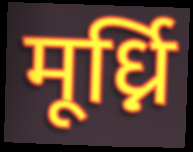
मूर्ध्नि